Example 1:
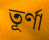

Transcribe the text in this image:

তূর্ণা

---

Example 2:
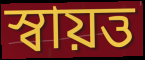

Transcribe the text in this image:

স্বায়ত্ত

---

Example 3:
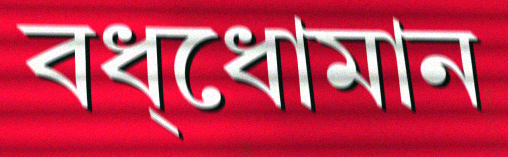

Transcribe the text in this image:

বধ্ধোমান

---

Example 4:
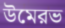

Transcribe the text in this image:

উমেরভ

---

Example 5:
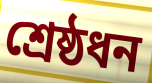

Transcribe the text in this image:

শ্রেষ্ঠধন